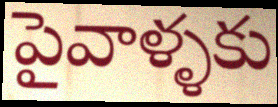
పైవాళ్ళకు